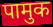
पामुक